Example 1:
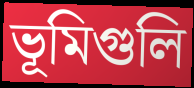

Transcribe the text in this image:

ভূমিগুলি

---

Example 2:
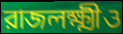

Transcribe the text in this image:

রাজলক্ষ্মীও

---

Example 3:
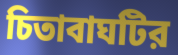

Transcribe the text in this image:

চিতাবাঘটির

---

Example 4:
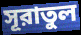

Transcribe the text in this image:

সূরাতুল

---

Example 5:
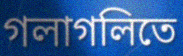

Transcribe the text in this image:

গলাগলিতে